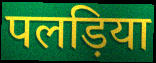
पलड़िया